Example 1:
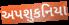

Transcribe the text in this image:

અપશુકનિયા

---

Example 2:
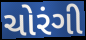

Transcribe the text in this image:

ચોરંગી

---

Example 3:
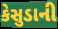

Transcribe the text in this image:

કેસુડાની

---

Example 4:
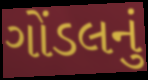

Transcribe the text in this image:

ગોંડલનું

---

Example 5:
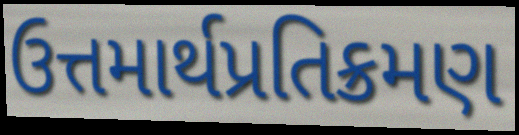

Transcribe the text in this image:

ઉત્તમાર્થપ્રતિક્રમણ